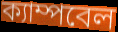
ক্যাম্পবেল